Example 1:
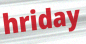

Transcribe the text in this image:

hriday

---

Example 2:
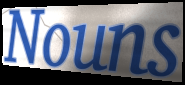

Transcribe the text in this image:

Nouns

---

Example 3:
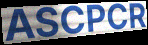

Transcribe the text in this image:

ASCPCR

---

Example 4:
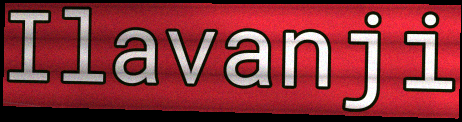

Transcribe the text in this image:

Ilavanji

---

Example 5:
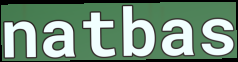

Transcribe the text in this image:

natbas